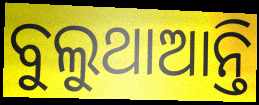
ବୁଲୁଥାଆନ୍ତି